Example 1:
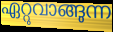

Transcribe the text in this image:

ഏറ്റുവാങ്ങുന്ന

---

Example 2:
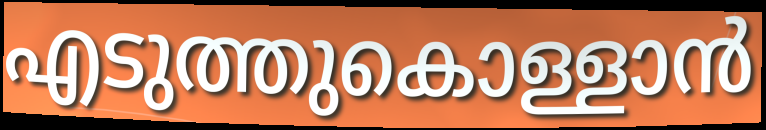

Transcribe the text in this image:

എടുത്തുകൊള്ളാൻ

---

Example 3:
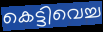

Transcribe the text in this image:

കെട്ടിവെച്ച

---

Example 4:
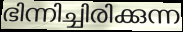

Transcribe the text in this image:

ഭിന്നിച്ചിരിക്കുന്ന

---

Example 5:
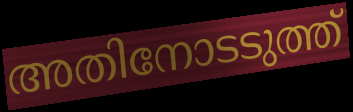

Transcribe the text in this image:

അതിനോടടുത്ത്